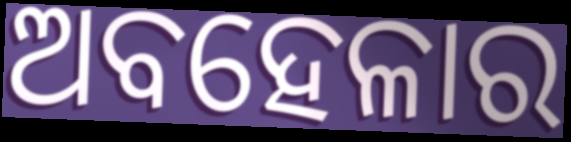
ଅବହେଳାର